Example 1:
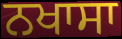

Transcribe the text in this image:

ਨਖਾਸਾ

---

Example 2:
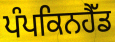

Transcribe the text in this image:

ਪੰਪਕਿਨਹੈੱਡ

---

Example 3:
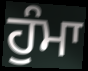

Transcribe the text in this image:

ਹੁੰਮਾ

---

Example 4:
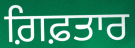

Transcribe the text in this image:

ਗ਼ਿਫ਼ਤਾਰ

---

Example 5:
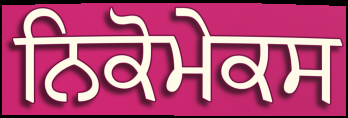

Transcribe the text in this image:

ਨਿਕੋਮੇਕਸ